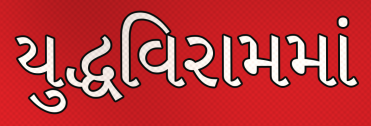
યુદ્ધવિરામમાં